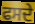
ਫਸਦੇ